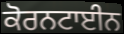
ਕੋਰਨਟਾਈਨ